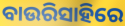
ବାଉରିସାହିରେ